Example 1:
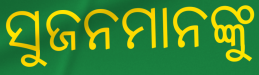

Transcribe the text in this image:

ସୁଜନମାନଙ୍କୁ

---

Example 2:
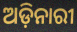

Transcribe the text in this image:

ଅଡ଼ିନାରୀ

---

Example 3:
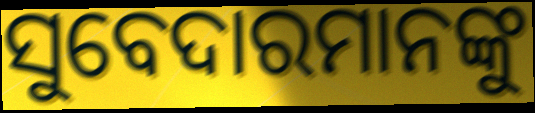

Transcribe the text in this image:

ସୁବେଦାରମାନଙ୍କୁ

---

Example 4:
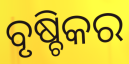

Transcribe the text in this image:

ବୃଷ୍ଚିକର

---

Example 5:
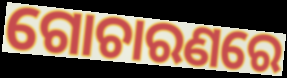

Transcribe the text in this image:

ଗୋଚାରଣରେ